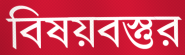
বিষয়বস্তুর